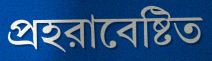
প্রহরাবেষ্টিত